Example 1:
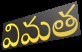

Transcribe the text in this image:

విమత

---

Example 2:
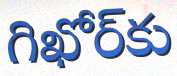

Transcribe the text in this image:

గిఖోర్‌కు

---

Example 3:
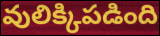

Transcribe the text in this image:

వులిక్కిపడింది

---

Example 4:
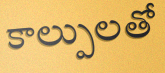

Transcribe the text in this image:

కాల్పులతో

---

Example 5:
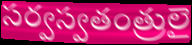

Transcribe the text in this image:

సర్వస్వతంత్రులై